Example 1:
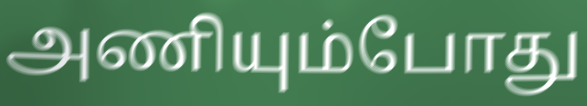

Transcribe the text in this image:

அணியும்போது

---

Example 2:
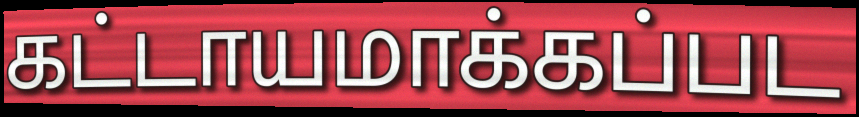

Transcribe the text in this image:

கட்டாயமாக்கப்பட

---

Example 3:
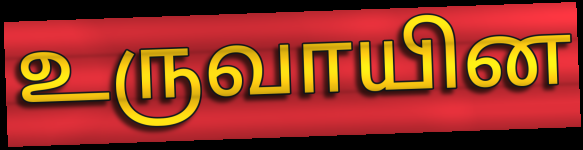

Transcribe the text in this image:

உருவாயின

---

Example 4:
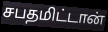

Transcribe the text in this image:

சபதமிட்டான்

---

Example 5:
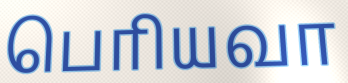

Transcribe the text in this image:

பெரியவா